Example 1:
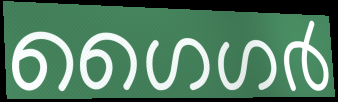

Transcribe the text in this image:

ഗൈഗർ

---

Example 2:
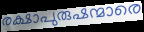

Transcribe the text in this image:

രക്ഷാപുരുഷന്മാരെ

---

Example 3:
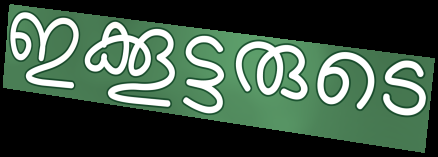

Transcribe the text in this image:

ഇക്കൂട്ടരുടെ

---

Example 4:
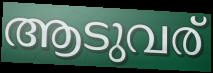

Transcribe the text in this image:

ആടുവര്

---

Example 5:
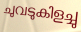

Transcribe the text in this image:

ചുവടുകിളച്ചു